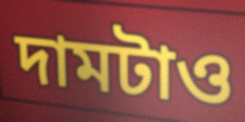
দামটাও